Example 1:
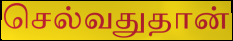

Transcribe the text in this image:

செல்வதுதான்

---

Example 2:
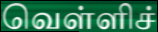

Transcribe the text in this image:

வெள்ளிச்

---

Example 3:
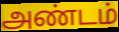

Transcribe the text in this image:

அண்டம்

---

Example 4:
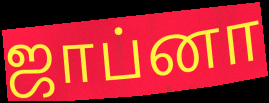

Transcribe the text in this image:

ஜாப்னா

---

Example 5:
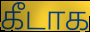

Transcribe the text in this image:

கீடாக